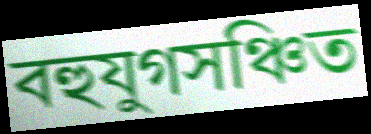
বহুযুগসঞ্চিত